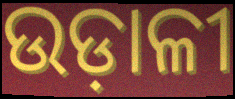
ଉଡ଼ାଳୀ